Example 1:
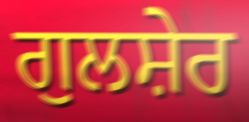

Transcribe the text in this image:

ਗੁਲਸ਼ੇਰ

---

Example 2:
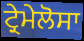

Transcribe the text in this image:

ਟ੍ਰੇਮੇਲੋਸਾ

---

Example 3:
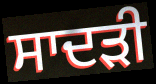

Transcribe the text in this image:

ਸਾਦੜੀ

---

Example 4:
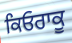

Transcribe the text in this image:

ਕਿਓਰਾਕੂ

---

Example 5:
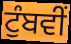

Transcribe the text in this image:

ਟੁੰਬਵੀਂ